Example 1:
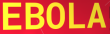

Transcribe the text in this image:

EBOLA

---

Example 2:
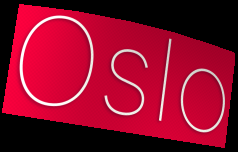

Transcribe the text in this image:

Oslo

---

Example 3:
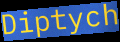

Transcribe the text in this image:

Diptych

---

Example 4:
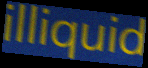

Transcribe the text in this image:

illiquid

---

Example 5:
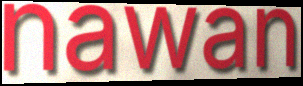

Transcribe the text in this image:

nawan